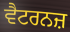
ਵੈਟਰਨਜ਼